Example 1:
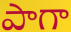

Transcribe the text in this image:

పాగా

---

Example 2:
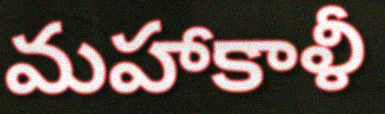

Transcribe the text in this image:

మహాకాళీ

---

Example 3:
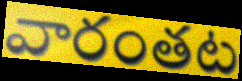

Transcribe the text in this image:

వారంతట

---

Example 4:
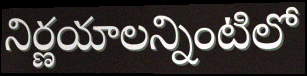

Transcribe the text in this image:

నిర్ణయాలన్నింటిలో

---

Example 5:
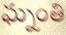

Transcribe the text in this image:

ఘ్నంతి